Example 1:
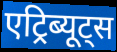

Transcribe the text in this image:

एट्रिब्यूट्स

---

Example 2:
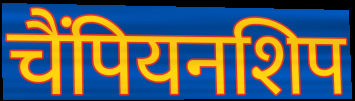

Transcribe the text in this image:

चैंपियनशिप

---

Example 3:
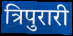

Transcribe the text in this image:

त्रिपुरारी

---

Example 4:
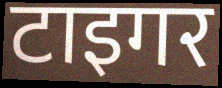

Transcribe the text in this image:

टाइगर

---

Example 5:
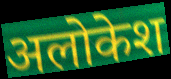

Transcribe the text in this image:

अलोकेश